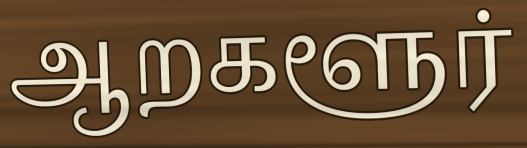
ஆறகளூர்